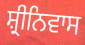
ਸ਼੍ਰੀਨਿਵਾਸ